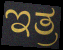
ಇತ್ರ